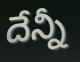
దేన్నీ